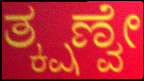
ತ್ಕ್ಷಣ್ವೇ